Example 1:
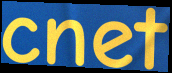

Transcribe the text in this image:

cnet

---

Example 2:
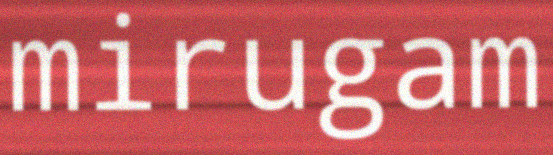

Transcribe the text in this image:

mirugam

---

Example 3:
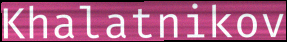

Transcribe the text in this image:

Khalatnikov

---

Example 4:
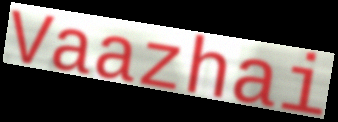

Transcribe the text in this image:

Vaazhai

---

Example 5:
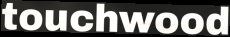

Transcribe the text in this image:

touchwood